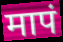
मापं